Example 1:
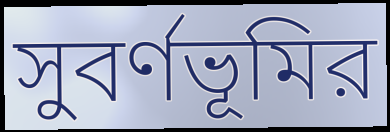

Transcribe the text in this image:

সুবর্ণভূমির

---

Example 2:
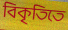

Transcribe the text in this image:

বিকৃতিতে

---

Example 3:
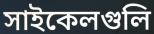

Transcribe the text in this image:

সাইকেলগুলি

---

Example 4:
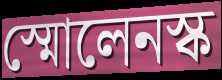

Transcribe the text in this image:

স্মোলেনস্ক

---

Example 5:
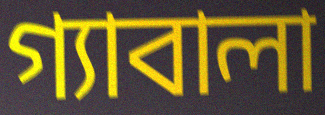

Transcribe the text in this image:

গ্যাবালা